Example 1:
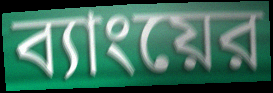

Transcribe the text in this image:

ব্যাংয়ের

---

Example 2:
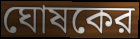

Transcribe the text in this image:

ঘোষকের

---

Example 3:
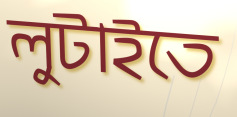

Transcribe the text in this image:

লুটাইতে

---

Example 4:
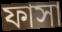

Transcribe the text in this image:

ফাসা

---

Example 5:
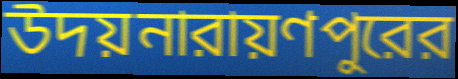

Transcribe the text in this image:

উদয়নারায়ণপুরের